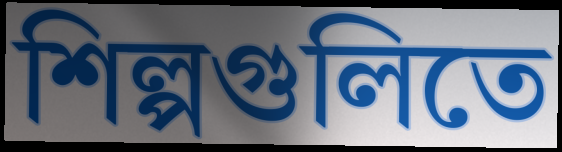
শিল্পগুলিতে